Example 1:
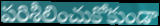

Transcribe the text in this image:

పరిశీలించుకోకుండా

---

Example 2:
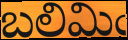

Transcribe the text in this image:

బలిమిఁ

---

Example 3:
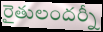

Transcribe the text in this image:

రైతులందర్నీ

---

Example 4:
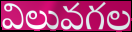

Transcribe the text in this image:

విలువగల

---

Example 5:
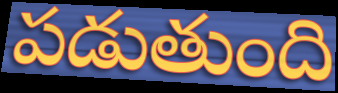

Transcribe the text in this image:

పడుతుంది